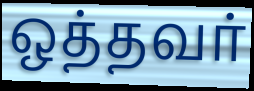
ஒத்தவர்